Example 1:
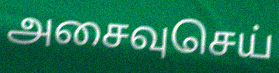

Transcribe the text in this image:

அசைவுசெய்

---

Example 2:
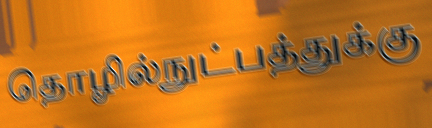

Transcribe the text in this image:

தொழில்நுட்பத்துக்கு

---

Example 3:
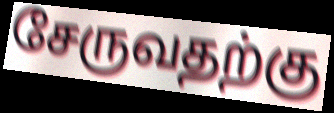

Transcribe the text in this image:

சேருவதற்கு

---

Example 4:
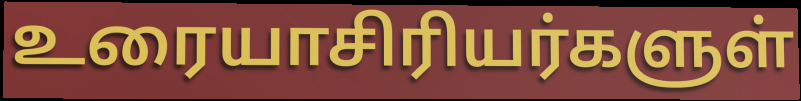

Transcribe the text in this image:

உரையாசிரியர்களுள்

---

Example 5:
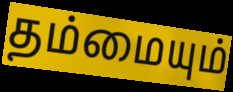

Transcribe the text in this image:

தம்மையும்